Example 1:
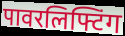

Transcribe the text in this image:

पावरलिफ्टिंग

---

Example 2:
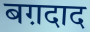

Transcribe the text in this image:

बग़दाद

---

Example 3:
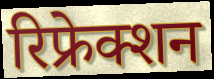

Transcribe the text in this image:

रिफ्रेक्शन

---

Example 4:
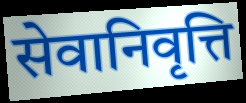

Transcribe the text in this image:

सेवानिवृत्ति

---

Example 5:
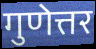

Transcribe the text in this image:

गुणेत्तर